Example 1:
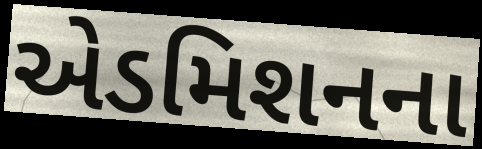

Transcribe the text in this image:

એડમિશનના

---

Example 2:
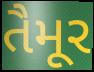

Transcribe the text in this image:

તૈમૂર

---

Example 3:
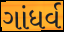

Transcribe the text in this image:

ગાંધર્વ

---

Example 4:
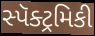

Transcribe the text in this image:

સ્પૅક્ટ્રમિકી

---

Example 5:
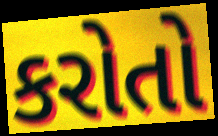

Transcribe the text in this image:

કરોતો